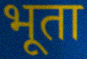
भूता